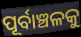
ପୂର୍ବାଞ୍ଚଳକୁ